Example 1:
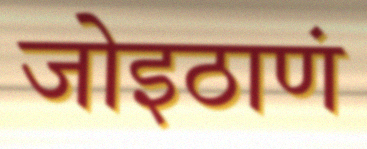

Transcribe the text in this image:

जोइठाणं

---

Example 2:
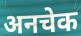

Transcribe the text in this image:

अनचेक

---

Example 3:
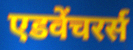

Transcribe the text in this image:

एडवेंचरर्स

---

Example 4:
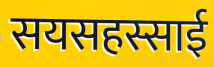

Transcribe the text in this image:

सयसहस्साई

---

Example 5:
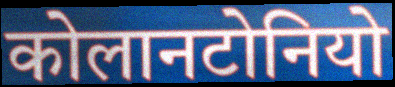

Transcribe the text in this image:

कोलानटोनियो